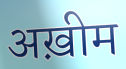
अख़ीम